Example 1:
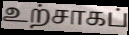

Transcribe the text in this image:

உற்சாகப்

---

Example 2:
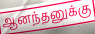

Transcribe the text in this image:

ஆனந்தனுக்கு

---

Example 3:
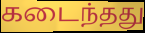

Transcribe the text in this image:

கடைந்தது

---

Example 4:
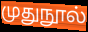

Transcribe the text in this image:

முதுநூல்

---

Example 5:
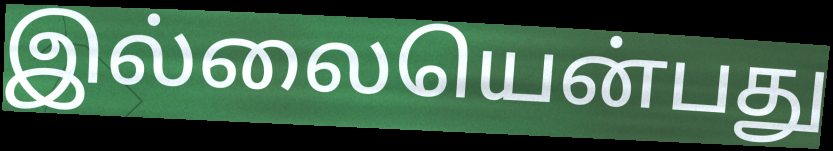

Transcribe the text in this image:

இல்லையென்பது